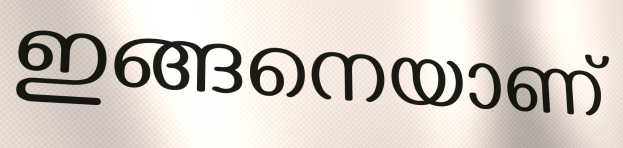
ഇങ്ങനെയാണ്